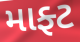
માફ્ટ